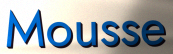
Mousse